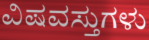
ವಿಷವಸ್ತುಗಳು